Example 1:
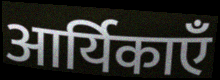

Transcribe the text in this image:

आर्यिकाएँ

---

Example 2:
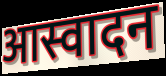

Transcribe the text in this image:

आस्वादन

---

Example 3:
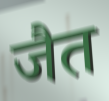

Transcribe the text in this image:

जैत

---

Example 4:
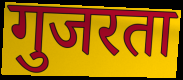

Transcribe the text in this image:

गुजरता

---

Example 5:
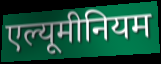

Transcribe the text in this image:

एल्यूमीनियम